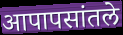
आपापसांतले